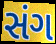
સંગ